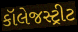
કૉલેજસ્ટ્રીટ